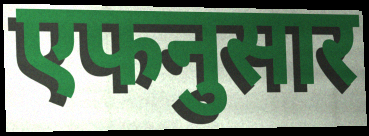
एफनुसार